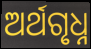
ଅର୍ଥଗୃଧ୍ନ